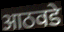
आठवडे